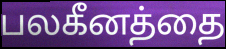
பலகீனத்தை